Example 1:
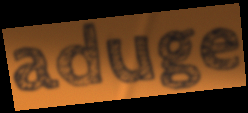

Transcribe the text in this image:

aduge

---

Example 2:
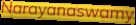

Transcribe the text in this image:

Narayanaswamy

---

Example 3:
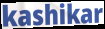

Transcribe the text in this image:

kashikar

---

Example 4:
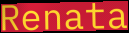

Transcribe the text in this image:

Renata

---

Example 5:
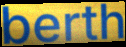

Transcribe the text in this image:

berth